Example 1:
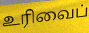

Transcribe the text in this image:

உரிவைப்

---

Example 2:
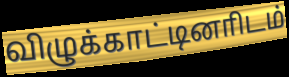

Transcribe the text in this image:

விழுக்காட்டினரிடம்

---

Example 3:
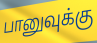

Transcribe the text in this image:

பானுவுக்கு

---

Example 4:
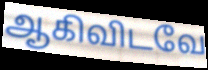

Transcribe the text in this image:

ஆகிவிடவே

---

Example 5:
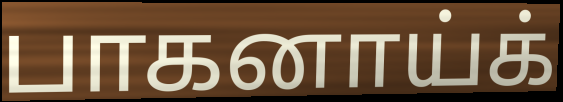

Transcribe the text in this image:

பாகனாய்க்